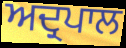
ਅਦ੍ਰਪਾਲ